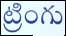
ట్రింగు